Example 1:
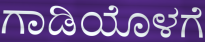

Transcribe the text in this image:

ಗಾಡಿಯೊಳಗೆ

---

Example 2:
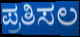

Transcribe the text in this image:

ಪ್ರತಿಸಲ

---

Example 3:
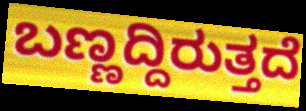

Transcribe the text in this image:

ಬಣ್ಣದ್ದಿರುತ್ತದೆ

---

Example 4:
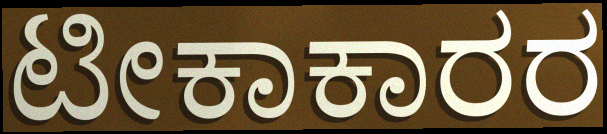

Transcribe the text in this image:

ಟೀಕಾಕಾರರ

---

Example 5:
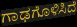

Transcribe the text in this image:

ಗಾಢಗೊಳಿಸಿದೆ